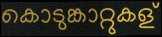
കൊടുങ്കാറ്റുകള്